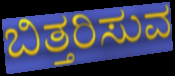
ಬಿತ್ತರಿಸುವ